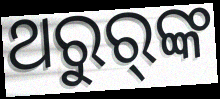
ଥରୁର୍‌ଙ୍କ